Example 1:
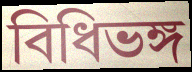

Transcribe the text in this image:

বিধিভঙ্গ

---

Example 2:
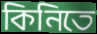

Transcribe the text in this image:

কিনিতে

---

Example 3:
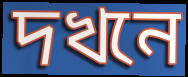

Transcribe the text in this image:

দখনে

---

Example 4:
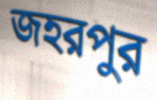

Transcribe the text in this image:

জহরপুর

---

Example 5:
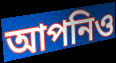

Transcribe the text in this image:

আপনিও